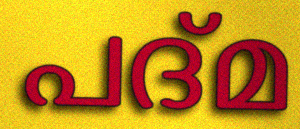
പദ്മ